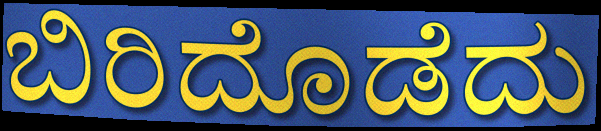
ಬಿರಿದೊಡೆದು